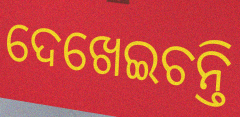
ଦେଖେଇଚନ୍ତି